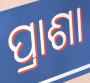
ପ୍ରାଶା